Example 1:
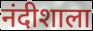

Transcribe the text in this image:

नंदीशाला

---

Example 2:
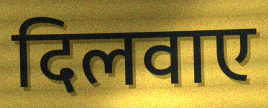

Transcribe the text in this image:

दिलवाए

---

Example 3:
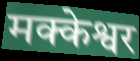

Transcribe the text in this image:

मक्केश्वर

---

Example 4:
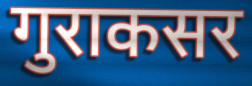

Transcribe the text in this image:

गुराकसर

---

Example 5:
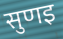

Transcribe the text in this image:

सुणइ